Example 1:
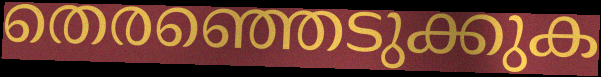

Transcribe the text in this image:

തെരഞ്ഞെടുക്കുക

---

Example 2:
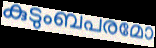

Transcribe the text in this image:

കുടുംബപരമോ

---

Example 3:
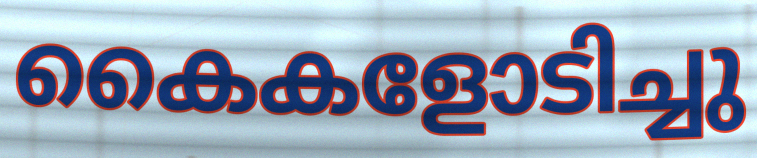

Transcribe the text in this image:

കൈകളോടിച്ചു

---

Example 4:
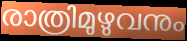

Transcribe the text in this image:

രാത്രിമുഴുവനും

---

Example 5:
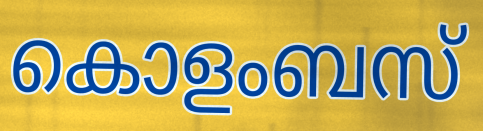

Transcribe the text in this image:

കൊളംബസ്